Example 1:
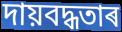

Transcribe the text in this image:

দায়বদ্ধতাৰ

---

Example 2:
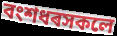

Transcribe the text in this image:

বংশধৰসকলে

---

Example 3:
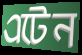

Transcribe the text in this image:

এটেন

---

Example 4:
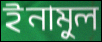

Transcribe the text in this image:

ইনামুল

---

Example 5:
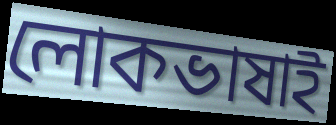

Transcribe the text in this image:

লোকভাষাই